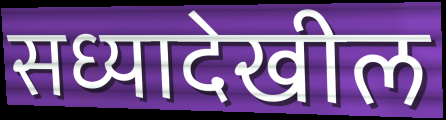
सध्यादेखील